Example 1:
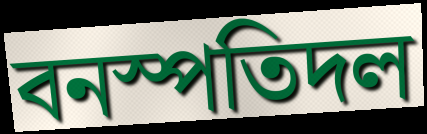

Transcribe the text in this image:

বনস্পতিদল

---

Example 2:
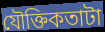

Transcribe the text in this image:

যৌক্তিকতাটা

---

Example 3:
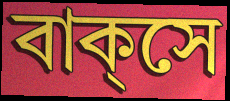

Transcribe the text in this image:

বাক্‌সে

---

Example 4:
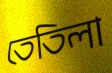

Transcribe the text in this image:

তেতিলা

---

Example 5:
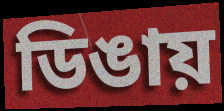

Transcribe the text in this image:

ডিঙায়